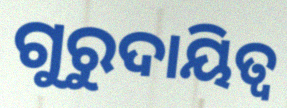
ଗୁରୁଦାୟିତ୍ୱ